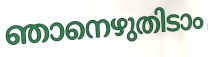
ഞാനെഴുതിടാം